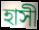
হাসী